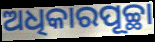
ଅଧିକାରପୂଚ୍ଛା